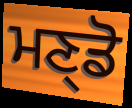
ਮਣ੍ਡੋ